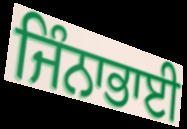
ਜਿੰਨਾਭਾਈ